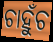
ଚାହୁଁଚ